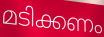
മടിക്കണം